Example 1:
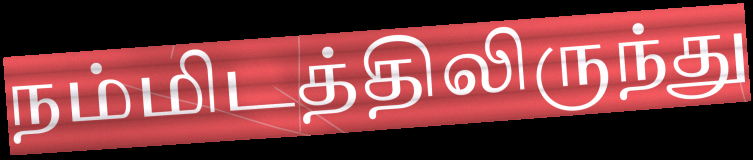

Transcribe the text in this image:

நம்மிடத்திலிருந்து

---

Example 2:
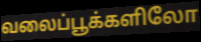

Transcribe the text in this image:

வலைப்பூக்களிலோ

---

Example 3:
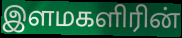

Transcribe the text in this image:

இளமகளிரின்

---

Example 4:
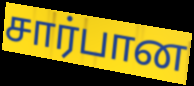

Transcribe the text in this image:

சார்பான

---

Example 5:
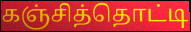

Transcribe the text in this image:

கஞ்சித்தொட்டி